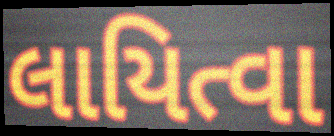
લાયિત્વા